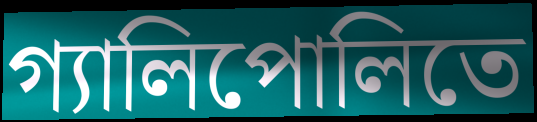
গ্যালিপোলিতে